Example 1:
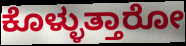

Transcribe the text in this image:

ಕೊಳ್ಳುತ್ತಾರೋ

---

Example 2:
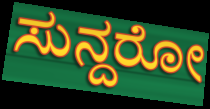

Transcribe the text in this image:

ಸುನ್ದರೋ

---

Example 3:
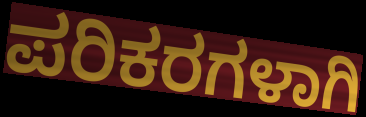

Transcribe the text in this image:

ಪರಿಕರಗಳಾಗಿ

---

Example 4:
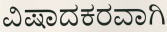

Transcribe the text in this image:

ವಿಷಾದಕರವಾಗಿ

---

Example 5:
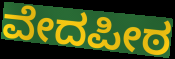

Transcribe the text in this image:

ವೇದಪೀಠ